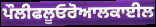
ਪੌਲੀਫਲੂਓਰੋਆਲਕਾਈਲ